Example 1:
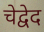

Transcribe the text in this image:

चेद्वेद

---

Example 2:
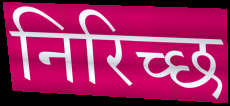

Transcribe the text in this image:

निरिच्छ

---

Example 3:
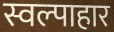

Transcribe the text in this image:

स्वल्पाहार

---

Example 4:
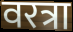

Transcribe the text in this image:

वरत्रा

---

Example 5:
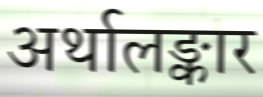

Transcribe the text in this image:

अर्थालङ्कार